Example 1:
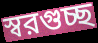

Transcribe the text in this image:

স্বরগুচ্ছ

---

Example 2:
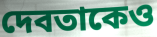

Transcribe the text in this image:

দেবতাকেও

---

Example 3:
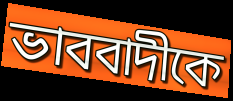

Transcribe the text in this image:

ভাববাদীকে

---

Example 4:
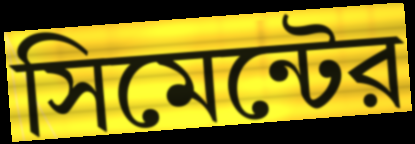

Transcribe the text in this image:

সিমেন্টের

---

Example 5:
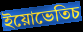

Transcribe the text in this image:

ইয়োভেতিচ